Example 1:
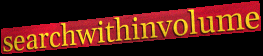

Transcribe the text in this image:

searchwithinvolume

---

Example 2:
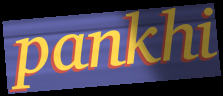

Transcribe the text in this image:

pankhi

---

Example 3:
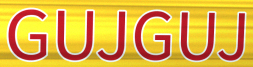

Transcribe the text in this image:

GUJGUJ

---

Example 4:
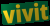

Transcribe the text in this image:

vivit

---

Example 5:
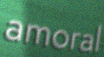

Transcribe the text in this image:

amoral